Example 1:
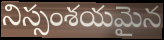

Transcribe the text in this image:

నిస్సంశయమైన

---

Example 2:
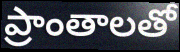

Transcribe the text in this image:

ప్రాంతాలతో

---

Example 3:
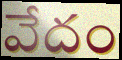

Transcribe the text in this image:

వేదం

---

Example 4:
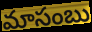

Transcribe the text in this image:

మాసంబు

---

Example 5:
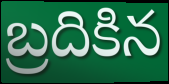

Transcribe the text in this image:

బ్రదికిన